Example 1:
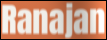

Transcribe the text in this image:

Ranajan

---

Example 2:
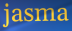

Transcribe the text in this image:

jasma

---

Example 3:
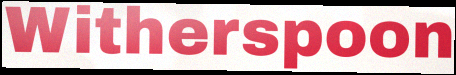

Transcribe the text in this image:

Witherspoon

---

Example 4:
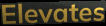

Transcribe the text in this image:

Elevates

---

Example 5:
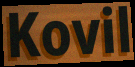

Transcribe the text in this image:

Kovil